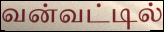
வன்வட்டில்